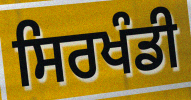
ਸਿਰਖੰਡੀ